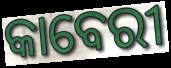
କାବେରୀ